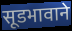
सूडभावाने